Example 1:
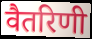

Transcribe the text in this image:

वैतरिणी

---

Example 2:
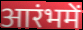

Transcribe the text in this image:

आरंभमें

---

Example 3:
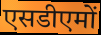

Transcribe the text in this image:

एसडीएमों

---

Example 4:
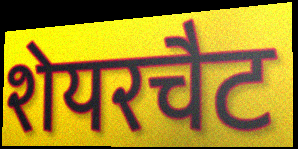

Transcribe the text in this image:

शेयरचैट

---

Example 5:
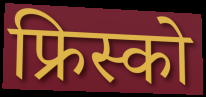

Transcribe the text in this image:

फ्रिस्को